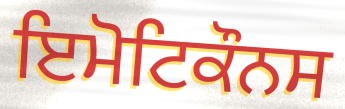
ਇਮੋਟਿਕੌਨਸ